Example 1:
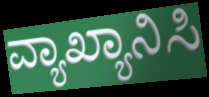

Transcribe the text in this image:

ವ್ಯಾಖ್ಯಾನಿಸಿ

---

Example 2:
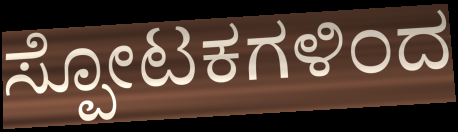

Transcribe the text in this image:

ಸ್ಪೋಟಕಗಳಿಂದ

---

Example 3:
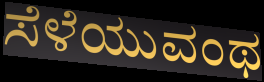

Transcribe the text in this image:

ಸೆಳೆಯುವಂಥ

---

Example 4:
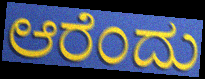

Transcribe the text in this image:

ಆರೆಂದು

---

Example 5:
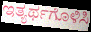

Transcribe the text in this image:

ಇತ್ಯರ್ಥಗೊಳಿಸಿ